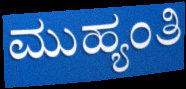
ಮುಹ್ಯಂತಿ